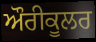
ਔਰੀਕੂਲਰ